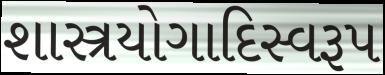
શાસ્ત્રયોગાદિસ્વરૂપ